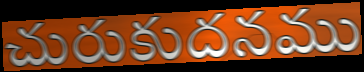
చురుకుదనము